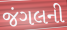
જંગલની